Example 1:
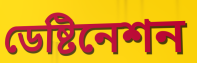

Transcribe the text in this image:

ডেষ্টিনেশন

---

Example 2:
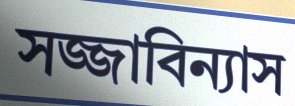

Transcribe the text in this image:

সজ্জাবিন্যাস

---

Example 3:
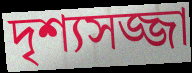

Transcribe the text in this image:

দৃশ্যসজ্জা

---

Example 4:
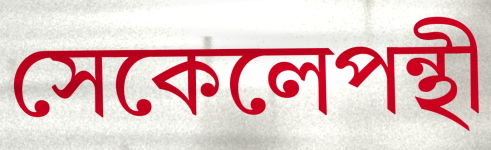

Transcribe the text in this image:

সেকেলেপন্থী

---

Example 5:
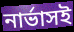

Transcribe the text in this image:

নার্ভাসই